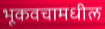
भूकवचामधील